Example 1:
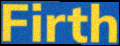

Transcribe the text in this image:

Firth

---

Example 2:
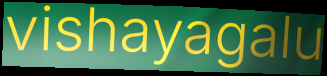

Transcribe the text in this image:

vishayagalu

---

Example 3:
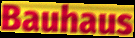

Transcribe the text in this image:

Bauhaus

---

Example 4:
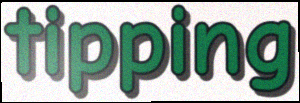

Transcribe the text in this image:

tipping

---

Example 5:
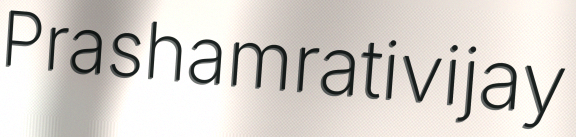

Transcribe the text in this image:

Prashamrativijay